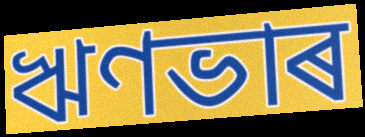
ঋণভাৰ